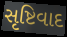
સૃષ્ટિવાદ